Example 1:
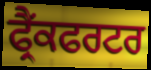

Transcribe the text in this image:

ਫ੍ਰੈਂਕਫਰਟਰ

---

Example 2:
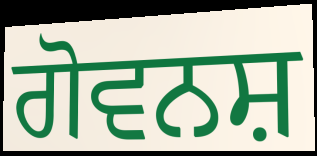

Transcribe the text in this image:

ਗੋਵਨਸ਼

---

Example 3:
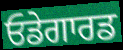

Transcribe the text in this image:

ਓਡੇਗਾਰਡ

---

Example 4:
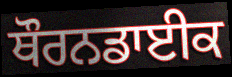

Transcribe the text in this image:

ਥੌਰਨਡਾਈਕ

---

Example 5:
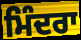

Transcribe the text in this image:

ਮਿੰਦਰਾ